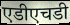
एडीएचडी